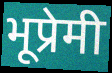
भूप्रेमी